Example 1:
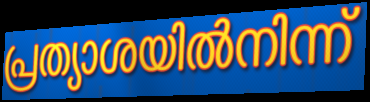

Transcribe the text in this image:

പ്രത്യാശയിൽനിന്ന്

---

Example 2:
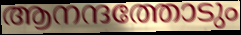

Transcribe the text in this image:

ആനന്ദത്തോടും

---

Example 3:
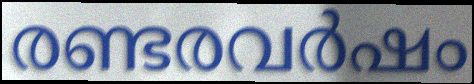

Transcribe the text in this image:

രണ്ടരവർഷം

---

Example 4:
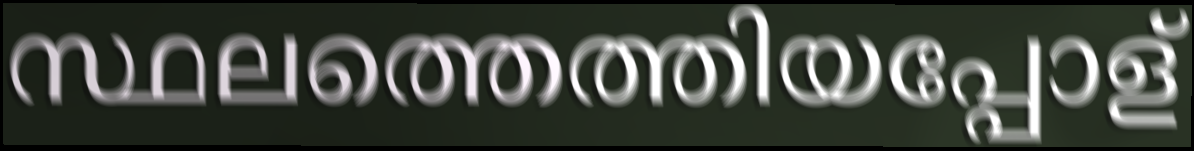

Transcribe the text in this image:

സ്ഥലത്തെത്തിയപ്പോള്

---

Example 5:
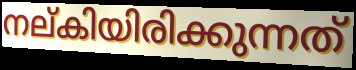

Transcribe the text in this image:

നല്കിയിരിക്കുന്നത്